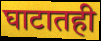
घाटातही